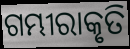
ଗମ୍ଭୀରାକୃତି